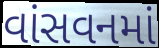
વાંસવનમાં